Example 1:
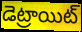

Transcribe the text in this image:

డెట్రాయిట్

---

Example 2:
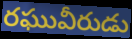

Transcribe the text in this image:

రఘువీరుడు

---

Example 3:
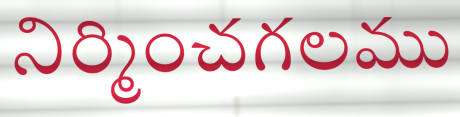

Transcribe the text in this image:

నిర్మించగలము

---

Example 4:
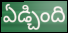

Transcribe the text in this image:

ఏడ్చింది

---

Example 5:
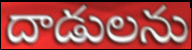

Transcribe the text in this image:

దాడులను